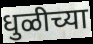
धुळीच्या